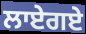
ਲਾਏਗਏ